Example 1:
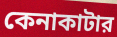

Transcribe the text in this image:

কেনাকাটার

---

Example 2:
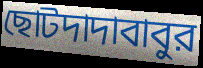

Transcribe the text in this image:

ছোটদাদাবাবুর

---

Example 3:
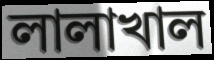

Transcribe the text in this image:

লালাখাল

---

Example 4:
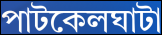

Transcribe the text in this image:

পাটকেলঘাটা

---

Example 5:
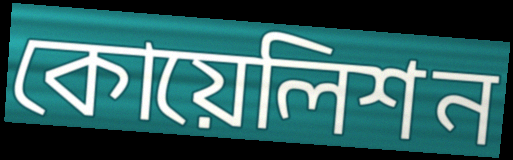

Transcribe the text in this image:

কোয়েলিশন